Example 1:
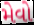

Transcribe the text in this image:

મેવો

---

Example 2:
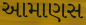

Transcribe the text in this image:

આમાણસ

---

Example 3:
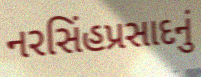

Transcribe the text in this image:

નરસિંહપ્રસાદનું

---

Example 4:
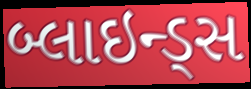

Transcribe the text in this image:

બ્લાઇન્ડ્સ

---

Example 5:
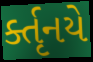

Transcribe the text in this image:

ર્ક્તૃનયે